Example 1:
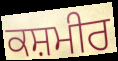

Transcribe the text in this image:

ਕਸ਼ਮੀਰ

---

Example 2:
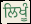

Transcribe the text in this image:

ਲਿਖੂੰ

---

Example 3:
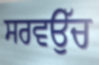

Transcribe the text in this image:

ਸਰਵਉੱਚ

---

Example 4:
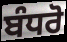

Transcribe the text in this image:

ਬੰਧਰੋ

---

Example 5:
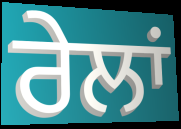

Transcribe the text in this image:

ਰੇਲਾਂ